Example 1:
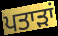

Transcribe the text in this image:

ਪਤਾੜਾਂ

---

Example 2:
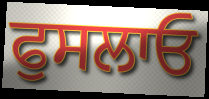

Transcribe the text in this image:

ਫੁਸਲਾਓ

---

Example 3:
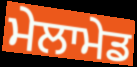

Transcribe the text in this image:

ਮੇਲਾਮੇਡ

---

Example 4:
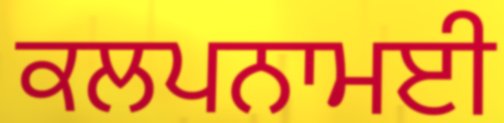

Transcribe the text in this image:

ਕਲਪਨਾਮਈ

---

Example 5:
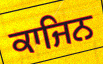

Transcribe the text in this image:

ਕਾਜਿਨ